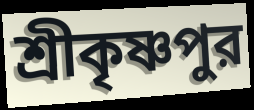
শ্রীকৃষ্ণপুর